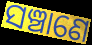
ସଞ୍ଚାଣେ